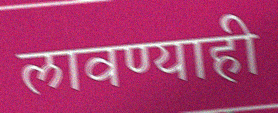
लावण्याही